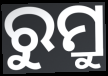
ରୁମ୍ରୁ